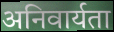
अनिवार्यता